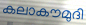
കലാകൗമുദി